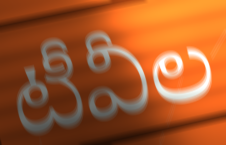
టీవీల